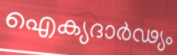
ഐക്യദാർഢ്യം